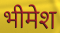
भीमेश